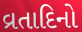
વ્રતાદિનો